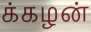
க்கழன்